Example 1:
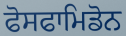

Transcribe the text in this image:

ਫੋਸਫਾਮਿਡੋਨ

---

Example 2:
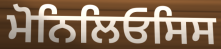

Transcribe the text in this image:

ਮੋਨਿਲਿਓਸਿਸ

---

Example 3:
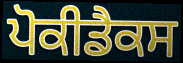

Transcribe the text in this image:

ਪੋਕੀਡੈਕਸ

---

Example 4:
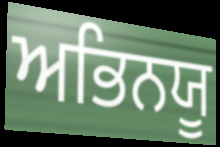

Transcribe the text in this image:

ਅਭਿਨਯੂ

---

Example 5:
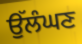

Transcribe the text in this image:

ਉੱਲੰਘਣ